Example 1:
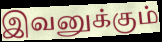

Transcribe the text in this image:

இவனுக்கும்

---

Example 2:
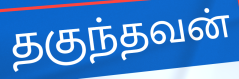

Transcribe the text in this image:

தகுந்தவன்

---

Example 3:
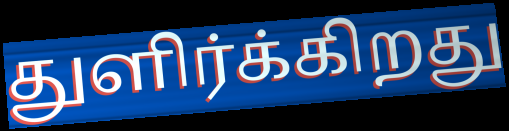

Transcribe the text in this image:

துளிர்க்கிறது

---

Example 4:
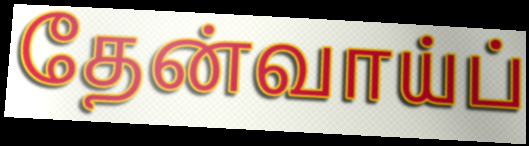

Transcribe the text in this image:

தேன்வாய்ப்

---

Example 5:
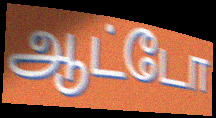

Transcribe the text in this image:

ஆட்டோ